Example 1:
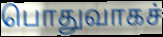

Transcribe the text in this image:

பொதுவாகச்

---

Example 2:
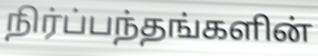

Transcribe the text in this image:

நிர்ப்பந்தங்களின்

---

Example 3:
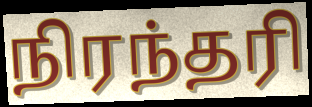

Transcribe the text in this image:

நிரந்தரி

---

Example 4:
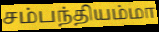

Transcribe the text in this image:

சம்பந்தியம்மா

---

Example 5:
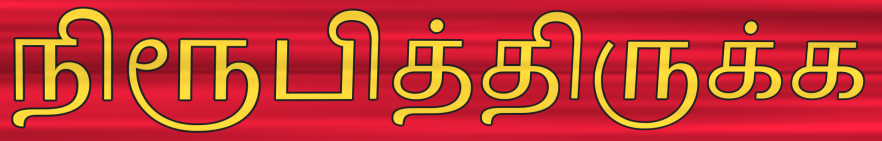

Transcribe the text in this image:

நிரூபித்திருக்க